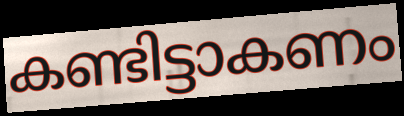
കണ്ടിട്ടാകണം